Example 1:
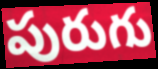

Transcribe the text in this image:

పురుగు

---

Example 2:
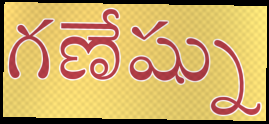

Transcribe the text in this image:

గణేష్ను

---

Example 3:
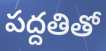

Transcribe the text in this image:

పద్దతితో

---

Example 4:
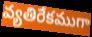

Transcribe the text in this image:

వ్యతిరేకముగా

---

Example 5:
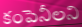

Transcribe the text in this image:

కంపెనీలని